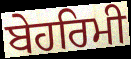
ਬੇਹਰਿਮੀ